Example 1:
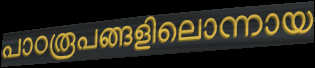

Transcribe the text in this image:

പാഠരൂപങ്ങളിലൊന്നായ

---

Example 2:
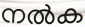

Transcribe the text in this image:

നൽക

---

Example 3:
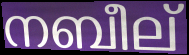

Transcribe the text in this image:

നബീല്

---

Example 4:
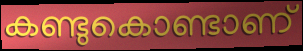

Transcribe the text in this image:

കണ്ടുകൊണ്ടാണ്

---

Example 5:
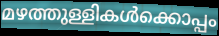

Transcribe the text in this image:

മഴത്തുള്ളികൾക്കൊപ്പം